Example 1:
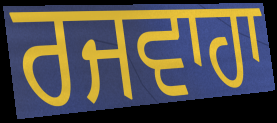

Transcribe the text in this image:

ਰਜਵਾਹਾ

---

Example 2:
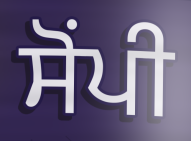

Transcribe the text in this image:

ਸੋੰਪੀ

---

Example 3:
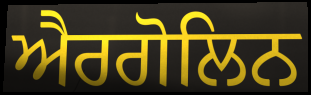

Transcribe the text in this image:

ਐਰਗੋਲਿਨ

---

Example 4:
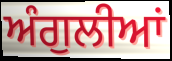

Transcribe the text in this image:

ਅੰਗੁਲੀਆਂ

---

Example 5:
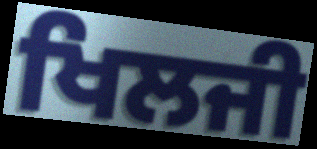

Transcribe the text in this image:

ਖਿਲਜੀ